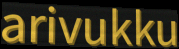
arivukku